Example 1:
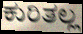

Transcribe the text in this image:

ಕುರಿತಲ್ಲ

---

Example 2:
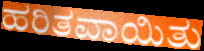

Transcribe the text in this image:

ಹರಿತವಾಯಿತು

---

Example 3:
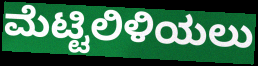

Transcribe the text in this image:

ಮೆಟ್ಟಿಲಿಳಿಯಲು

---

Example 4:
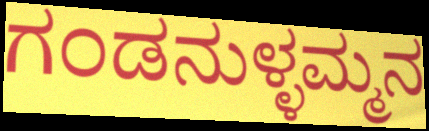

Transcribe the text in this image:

ಗಂಡನುಳ್ಳಮ್ಮನ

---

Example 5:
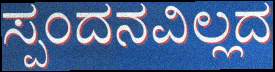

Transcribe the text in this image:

ಸ್ಪಂದನವಿಲ್ಲದ